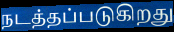
நடத்தப்படுகிறது